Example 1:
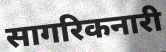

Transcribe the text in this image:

सागरिकनारी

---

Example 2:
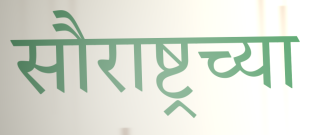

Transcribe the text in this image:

सौराष्ट्रच्या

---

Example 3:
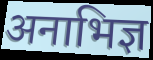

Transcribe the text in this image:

अनाभिज्ञ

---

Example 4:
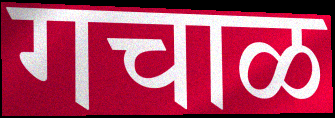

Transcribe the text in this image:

गचाळ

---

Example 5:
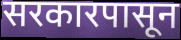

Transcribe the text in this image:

सरकारपासून